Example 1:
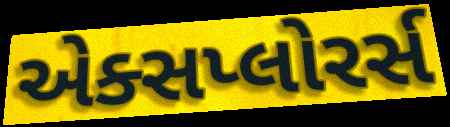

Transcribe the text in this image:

એક્સપ્લોરર્સ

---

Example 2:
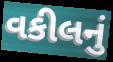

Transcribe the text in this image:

વકીલનું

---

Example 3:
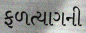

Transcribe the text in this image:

ફળત્યાગની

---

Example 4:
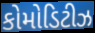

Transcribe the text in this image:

કોમોડિટીઝ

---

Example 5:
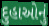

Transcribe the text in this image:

દુહાઓનું